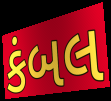
કંબલ